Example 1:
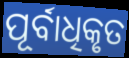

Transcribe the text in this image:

ପୂର୍ବାଧିକୃତ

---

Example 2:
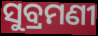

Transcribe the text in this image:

ସୁବ୍ରମଣୀ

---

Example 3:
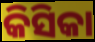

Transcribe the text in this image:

କିସିକା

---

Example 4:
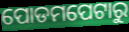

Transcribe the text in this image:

ପୋଡମପେଟାରୁ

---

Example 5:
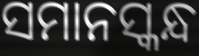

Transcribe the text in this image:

ସମାନସ୍କନ୍ଧ